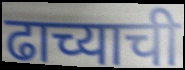
ढाच्याची